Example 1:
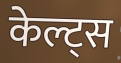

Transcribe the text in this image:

केल्ट्स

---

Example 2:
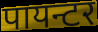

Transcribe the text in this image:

पायन्टर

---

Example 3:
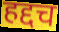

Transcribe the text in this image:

हद्दच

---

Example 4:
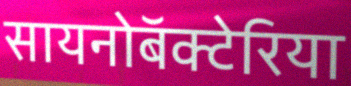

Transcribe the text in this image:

सायनोबॅक्टेरिया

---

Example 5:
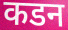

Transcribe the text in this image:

कडन